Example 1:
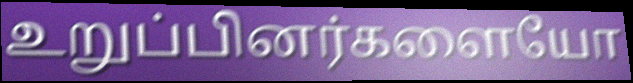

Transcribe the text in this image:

உறுப்பினர்களையோ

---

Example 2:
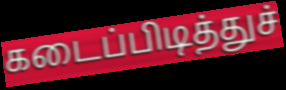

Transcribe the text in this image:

கடைப்பிடித்துச்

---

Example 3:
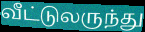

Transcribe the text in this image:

வீட்டுலருந்து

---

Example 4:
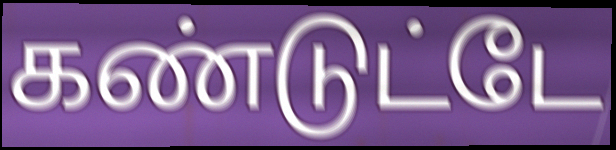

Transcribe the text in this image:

கண்டுட்டே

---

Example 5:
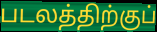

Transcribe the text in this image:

படலத்திற்குப்